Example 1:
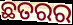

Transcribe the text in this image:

ଛତରର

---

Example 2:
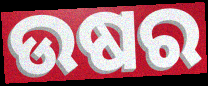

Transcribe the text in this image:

ଉଷର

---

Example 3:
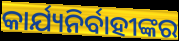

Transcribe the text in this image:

କାର୍ଯ୍ୟନିର୍ବାହୀଙ୍କର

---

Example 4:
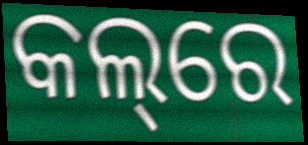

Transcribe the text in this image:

କଲ୍‌ରେ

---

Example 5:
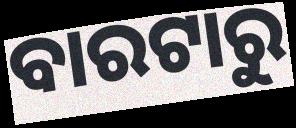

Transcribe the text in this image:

ବାରଟାରୁ